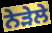
ਨੇੜੇਲੇ